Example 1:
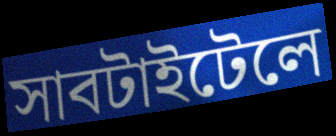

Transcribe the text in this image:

সাবটাইটেলে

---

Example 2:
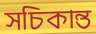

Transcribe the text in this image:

সচিকান্ত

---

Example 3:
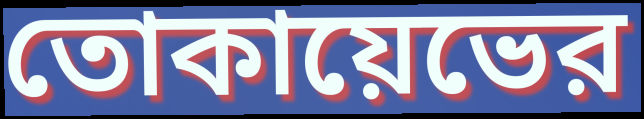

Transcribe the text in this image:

তোকায়েভের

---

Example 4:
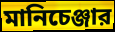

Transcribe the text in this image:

মানিচেঞ্জার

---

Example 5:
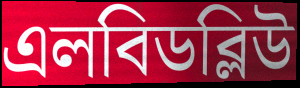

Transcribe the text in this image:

এলবিডব্লিউ